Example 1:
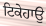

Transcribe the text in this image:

ਟਿਕੇਹਾਉ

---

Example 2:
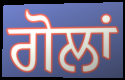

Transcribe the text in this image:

ਗੋਲਾਂ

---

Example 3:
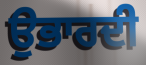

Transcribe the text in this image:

ਉਭਾਰਦੀ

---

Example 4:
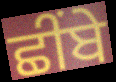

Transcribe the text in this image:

ਛੀਂਬੇ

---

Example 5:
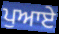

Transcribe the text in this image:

ਪੁਆਏ